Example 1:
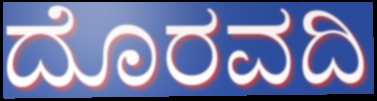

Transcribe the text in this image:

ದೊರವದಿ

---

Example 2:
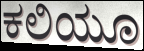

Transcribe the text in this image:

ಕಲಿಯೂ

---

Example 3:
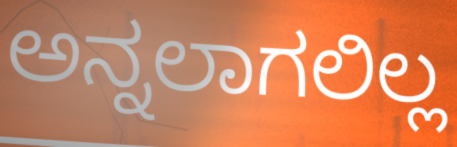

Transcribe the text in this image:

ಅನ್ನಲಾಗಲಿಲ್ಲ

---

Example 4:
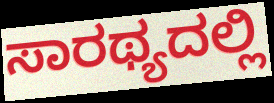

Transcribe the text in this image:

ಸಾರಥ್ಯದಲ್ಲಿ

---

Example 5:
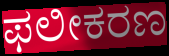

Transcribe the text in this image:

ಫಲೀಕರಣ